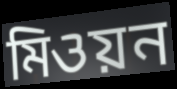
মিওয়ন